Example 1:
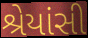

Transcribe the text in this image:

શ્રેયાંસી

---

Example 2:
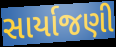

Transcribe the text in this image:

સાર્યાજણી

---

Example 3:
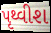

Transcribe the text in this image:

પૃથ્વીશ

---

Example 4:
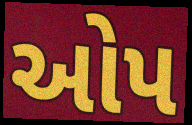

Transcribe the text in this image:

ઓપ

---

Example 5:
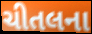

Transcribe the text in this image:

ચીતલના